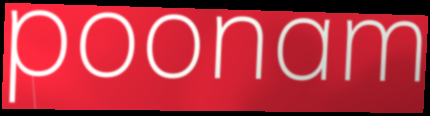
poonam